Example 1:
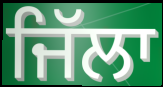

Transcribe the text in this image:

ਜਿੱਲਾ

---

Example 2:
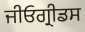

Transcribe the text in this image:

ਜੀਓਗ੍ਰੀਡਸ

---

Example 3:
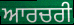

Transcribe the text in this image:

ਆਰਚਰੀ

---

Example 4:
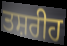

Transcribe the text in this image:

ਤਸ਼ਰੀਹ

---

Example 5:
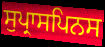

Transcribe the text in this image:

ਸੁਪ੍ਰਾਸਪਿਨਸ